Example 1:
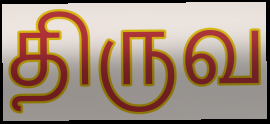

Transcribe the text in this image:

திருவ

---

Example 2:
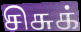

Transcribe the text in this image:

சிசுக்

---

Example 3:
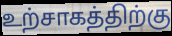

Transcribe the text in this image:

உற்சாகத்திற்கு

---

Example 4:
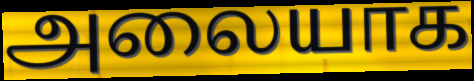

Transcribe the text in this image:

அலையாக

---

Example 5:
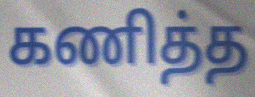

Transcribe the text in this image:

கணித்த